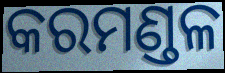
କରମଣ୍ଡଳ